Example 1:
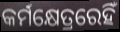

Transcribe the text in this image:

କର୍ମକ୍ଷେତ୍ରରେହିଁ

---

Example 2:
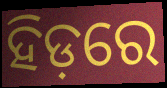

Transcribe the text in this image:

ହିଡ଼ରେ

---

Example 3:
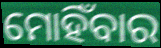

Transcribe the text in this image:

ମୋହିଁବାର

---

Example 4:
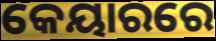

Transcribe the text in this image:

କେୟାରରେ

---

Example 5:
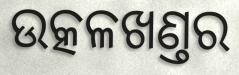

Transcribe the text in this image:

ଉତ୍କଳଖଣ୍ତର